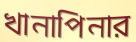
খানাপিনার